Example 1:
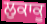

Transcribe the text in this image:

ਲੁਕਾਕੂ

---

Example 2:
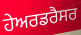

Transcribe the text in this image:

ਹੇਅਰਡਰੈਸਰ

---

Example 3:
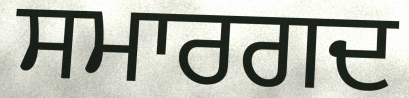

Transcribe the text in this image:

ਸਮਾਰਗਦ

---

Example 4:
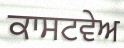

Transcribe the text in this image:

ਕਾਸਟਵੇਅ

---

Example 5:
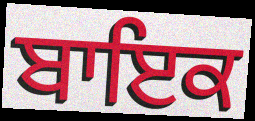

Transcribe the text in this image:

ਬਾਇਕ